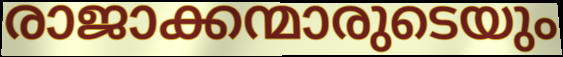
രാജാക്കന്മാരുടെയും